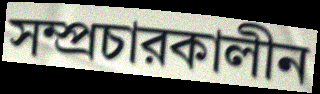
সম্প্রচারকালীন